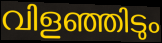
വിളഞ്ഞിടും